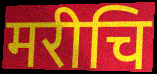
मरीचि